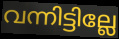
വന്നിട്ടില്ലേ